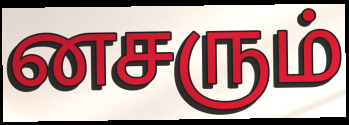
னசரும்